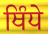
ਥਿੰਧੇ